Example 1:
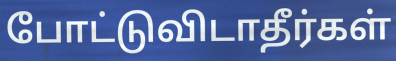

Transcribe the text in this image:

போட்டுவிடாதீர்கள்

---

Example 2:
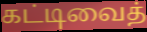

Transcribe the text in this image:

கட்டிவைத்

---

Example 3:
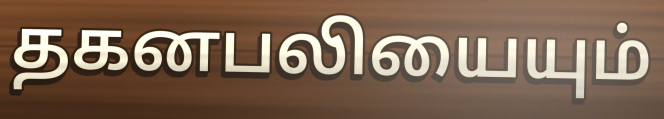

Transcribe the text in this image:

தகனபலியையும்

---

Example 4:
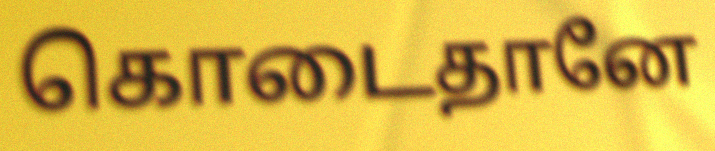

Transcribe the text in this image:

கொடைதானே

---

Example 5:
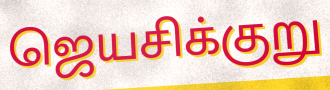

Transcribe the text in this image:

ஜெயசிக்குறு